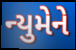
ન્યુમેને